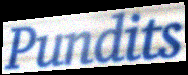
Pundits